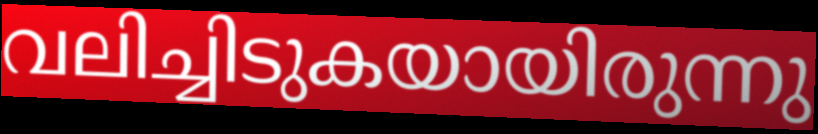
വലിച്ചിടുകയായിരുന്നു